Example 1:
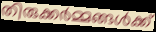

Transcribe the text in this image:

തിരുക്കർമ്മങ്ങൾക്ക്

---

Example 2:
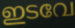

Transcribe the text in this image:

ഇടവേ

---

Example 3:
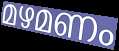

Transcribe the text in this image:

മഴമണം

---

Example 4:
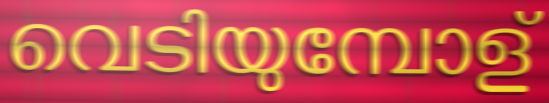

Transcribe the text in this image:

വെടിയുമ്പോള്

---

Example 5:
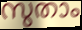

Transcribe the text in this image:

സുതാം